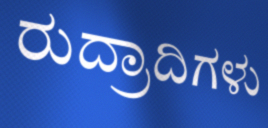
ರುದ್ರಾದಿಗಳು